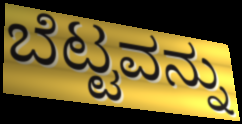
ಬೆಟ್ಟವನ್ನು